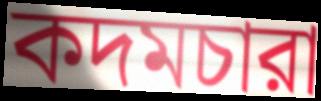
কদমচারা